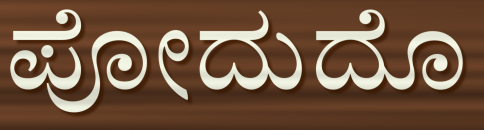
ಪೋದುದೊ